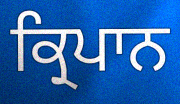
ਕ੍ਰਿਪਾਨ